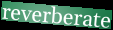
reverberate